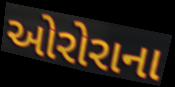
ઓરોરાના